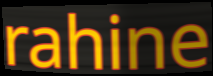
rahine